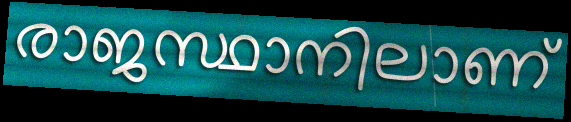
രാജസ്ഥാനിലാണ്